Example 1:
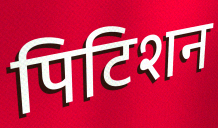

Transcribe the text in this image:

पिटिशन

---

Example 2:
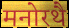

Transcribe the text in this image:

मनोरथै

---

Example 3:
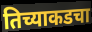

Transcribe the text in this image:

तिच्याकडचा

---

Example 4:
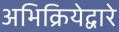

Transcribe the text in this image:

अभिक्रियेद्वारे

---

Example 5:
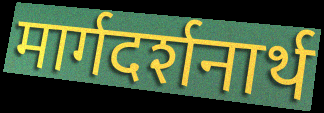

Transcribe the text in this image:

मार्गदर्शनार्थ